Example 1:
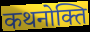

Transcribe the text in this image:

कथनोक्ति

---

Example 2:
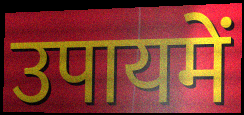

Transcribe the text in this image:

उपायमें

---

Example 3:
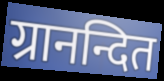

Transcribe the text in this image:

ग्रानन्दित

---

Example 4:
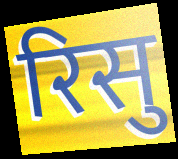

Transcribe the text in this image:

रिसु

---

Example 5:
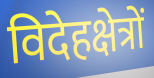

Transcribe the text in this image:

विदेहक्षेत्रों